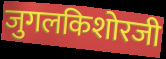
जुगलकिशोरजी